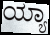
ಯ್ಯಾ